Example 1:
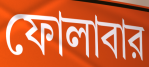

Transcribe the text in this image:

ফোলাবার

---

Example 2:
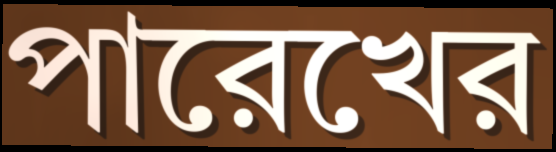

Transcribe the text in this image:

পারেখের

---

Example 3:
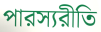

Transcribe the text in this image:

পারস্যরীতি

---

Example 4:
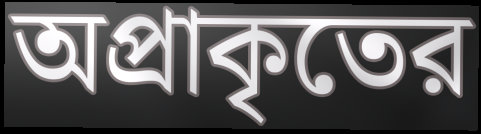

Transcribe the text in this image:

অপ্রাকৃতের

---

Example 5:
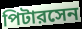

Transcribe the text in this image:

পিটারসেন